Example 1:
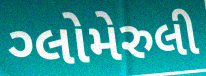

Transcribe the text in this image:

ગ્લોમેરુલી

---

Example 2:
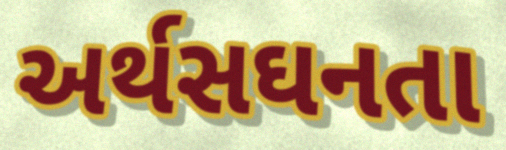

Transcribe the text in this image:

અર્થસઘનતા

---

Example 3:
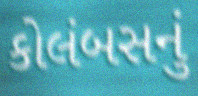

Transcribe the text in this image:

કોલંબસનું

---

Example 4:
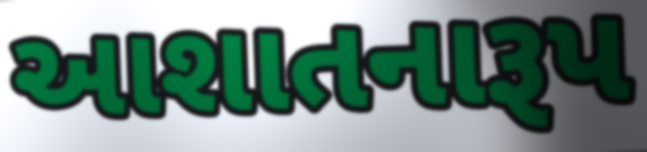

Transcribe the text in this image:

આશાતનારૂપ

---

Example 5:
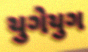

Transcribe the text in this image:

યુગેયુગ